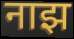
नाझ